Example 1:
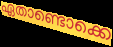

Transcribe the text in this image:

ഏതാണ്ടൊക്കെ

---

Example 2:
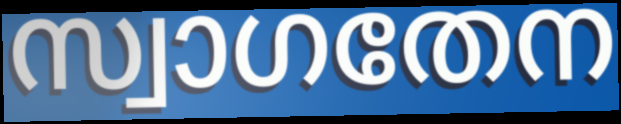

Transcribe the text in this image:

സ്വാഗതേന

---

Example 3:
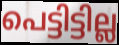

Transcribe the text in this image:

പെട്ടിട്ടില്ല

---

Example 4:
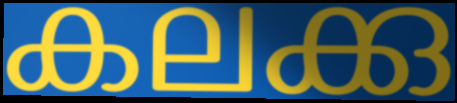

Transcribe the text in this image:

കലക്കു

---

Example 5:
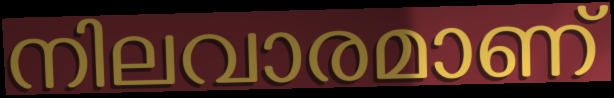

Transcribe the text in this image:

നിലവാരമാണ്